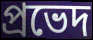
প্রভেদ